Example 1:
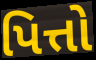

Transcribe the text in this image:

પિત્તો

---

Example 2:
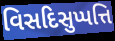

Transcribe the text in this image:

વિસદિસુપ્પત્તિ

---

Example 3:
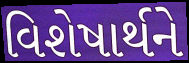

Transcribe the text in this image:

વિશેષાર્થને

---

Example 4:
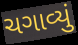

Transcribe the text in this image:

ચગાવ્યું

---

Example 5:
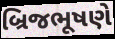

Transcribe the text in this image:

બ્રિજભૂષણે